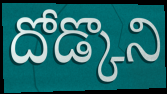
దోడ్కొని